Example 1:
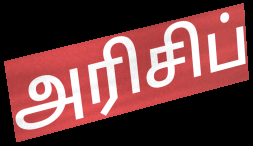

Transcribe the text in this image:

அரிசிப்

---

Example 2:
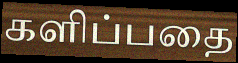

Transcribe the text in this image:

களிப்பதை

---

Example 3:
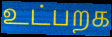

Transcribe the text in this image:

உட்பறக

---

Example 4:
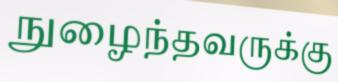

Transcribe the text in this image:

நுழைந்தவருக்கு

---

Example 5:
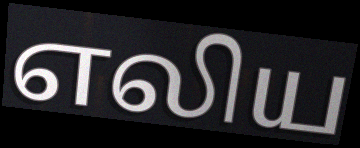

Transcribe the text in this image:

எலிய